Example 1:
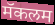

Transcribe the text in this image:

मॅकलम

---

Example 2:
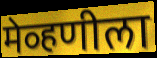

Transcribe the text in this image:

मेव्हणीला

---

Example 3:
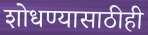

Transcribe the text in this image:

शोधण्यासाठीही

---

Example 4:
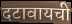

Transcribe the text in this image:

दटावायची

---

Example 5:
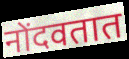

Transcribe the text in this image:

नोंदवतात